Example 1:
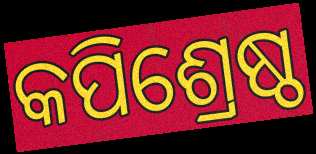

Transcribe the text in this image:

କପିଶ୍ରେଷ୍ଠ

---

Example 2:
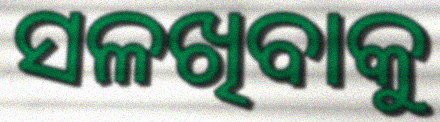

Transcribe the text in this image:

ସଳଖିବାକୁ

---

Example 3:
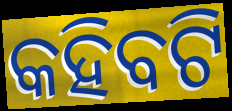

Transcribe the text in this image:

କହିବଟି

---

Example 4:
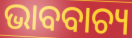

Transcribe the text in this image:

ଭାବବାଚ୍ୟ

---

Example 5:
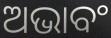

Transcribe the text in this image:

ଅଭାବଂ